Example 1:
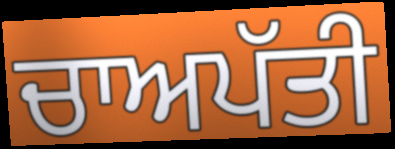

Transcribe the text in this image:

ਚਾਅਪੱਤੀ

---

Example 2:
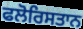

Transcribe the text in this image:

ਫਲੋਰਿਸਤਾਨ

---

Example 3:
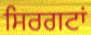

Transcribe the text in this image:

ਸਿਰਗਟਾਂ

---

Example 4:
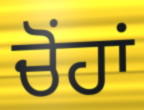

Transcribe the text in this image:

ਚੋਂਹਾਂ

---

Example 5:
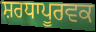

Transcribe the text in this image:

ਸ਼ਰਧਾਪੂਰਵਕ